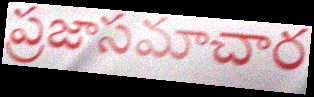
ప్రజాసమాచార